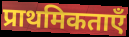
प्राथमिकताएँ